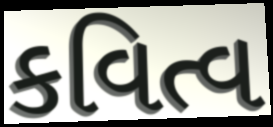
કવિત્વ